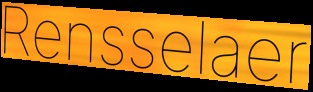
Rensselaer